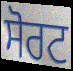
ਸੋਰਟ